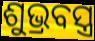
ଶୁଭ୍ରବସ୍ତ୍ର